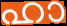
ഹാ